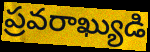
ప్రవరాఖ్యుడి